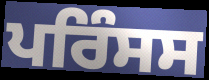
ਪਰਿੰਸਸ